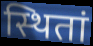
स्थितां